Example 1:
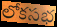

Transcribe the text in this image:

లోకసభ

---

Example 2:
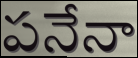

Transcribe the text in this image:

పనేనా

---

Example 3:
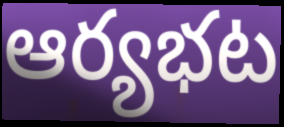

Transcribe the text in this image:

ఆర్యభట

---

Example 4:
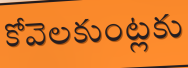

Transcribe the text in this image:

కోవెలకుంట్లకు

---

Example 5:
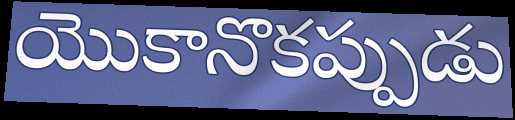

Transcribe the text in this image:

యొకానొకప్పుడు